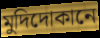
মুদিদোকানে